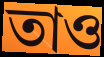
তাও